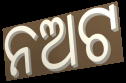
ନଅଟ